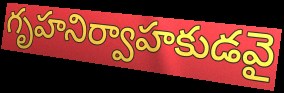
గృహనిర్వాహకుడవై